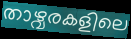
താഴ്വരകളിലെ